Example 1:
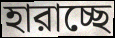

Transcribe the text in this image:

হারাচ্ছে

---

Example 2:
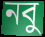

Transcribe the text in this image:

নবু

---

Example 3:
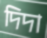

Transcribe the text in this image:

দিদা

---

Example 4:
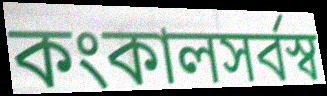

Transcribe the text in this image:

কংকালসর্বস্ব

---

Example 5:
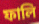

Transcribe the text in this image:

ফালি